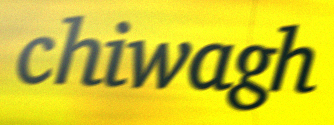
chiwagh